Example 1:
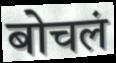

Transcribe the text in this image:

बोचलं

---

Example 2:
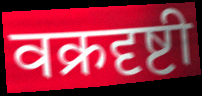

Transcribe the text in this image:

वक्रदृष्टी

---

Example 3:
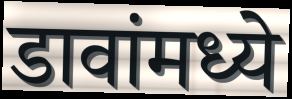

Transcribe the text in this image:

डावांमध्ये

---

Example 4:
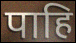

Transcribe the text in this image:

पाहि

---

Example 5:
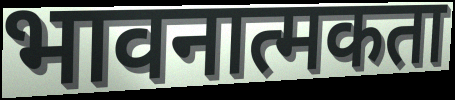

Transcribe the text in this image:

भावनात्मकता